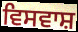
ਵਿਸਵਾਸ਼